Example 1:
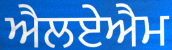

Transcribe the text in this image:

ਐਲਏਐਮ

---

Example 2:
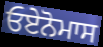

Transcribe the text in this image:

ਓਏਨੋਮਾਸ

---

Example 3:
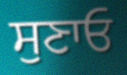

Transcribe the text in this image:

ਸੁਣਾਓ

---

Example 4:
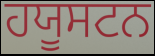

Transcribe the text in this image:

ਹਯੂਸਟਨ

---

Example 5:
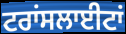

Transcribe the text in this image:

ਟਰਾਂਸਲਾਈਟਾਂ